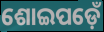
ଶୋଇପଡ଼େଁ